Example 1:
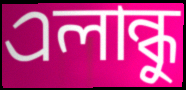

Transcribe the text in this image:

এলান্ধু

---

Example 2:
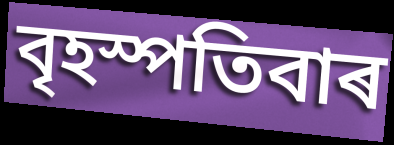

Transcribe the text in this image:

বৃহস্পতিবাৰ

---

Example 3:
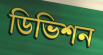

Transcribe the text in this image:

ডিভিশন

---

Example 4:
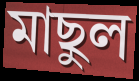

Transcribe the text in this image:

মাছুল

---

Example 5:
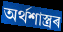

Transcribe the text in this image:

অৰ্থশাস্ত্ৰৰ